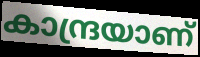
കാന്ദ്രയാണ്